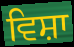
ਵਿਸ਼ਾ